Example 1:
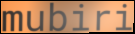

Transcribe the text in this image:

mubiri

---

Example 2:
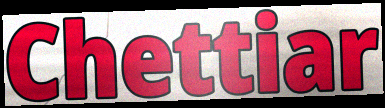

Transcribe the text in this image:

Chettiar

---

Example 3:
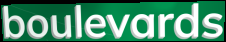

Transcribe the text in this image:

boulevards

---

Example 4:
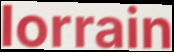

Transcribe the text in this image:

lorrain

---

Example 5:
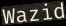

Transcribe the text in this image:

Wazid